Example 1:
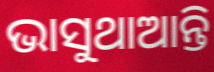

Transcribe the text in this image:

ଭାସୁଥାଆନ୍ତି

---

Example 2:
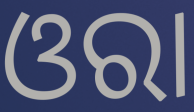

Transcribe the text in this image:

ଓରା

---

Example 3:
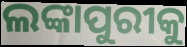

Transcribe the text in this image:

ଲଙ୍କାପୁରୀକୁ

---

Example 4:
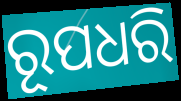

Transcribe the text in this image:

ରୂପଧରି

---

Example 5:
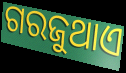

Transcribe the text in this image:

ଗରଜୁଥାଏ